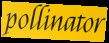
pollinator